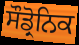
ਸੌਡ੍ਰੋਨਿਕ